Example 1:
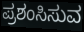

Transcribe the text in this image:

ಪ್ರಶಂಸಿಸುವ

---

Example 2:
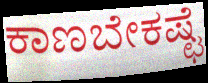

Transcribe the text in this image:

ಕಾಣಬೇಕಷ್ಟೆ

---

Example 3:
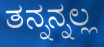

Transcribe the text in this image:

ತನ್ನನ್ನಲ್ಲ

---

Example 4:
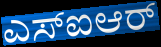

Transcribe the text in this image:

ಎಸ್ಐಆರ್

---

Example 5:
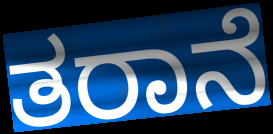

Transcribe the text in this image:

ತರಾನೆ